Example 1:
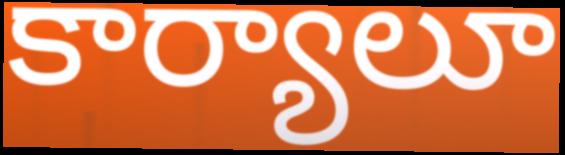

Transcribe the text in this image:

కార్యాలూ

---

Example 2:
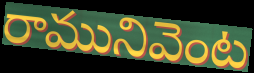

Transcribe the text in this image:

రామునివెంట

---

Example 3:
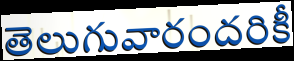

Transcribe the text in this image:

తెలుగువారందరికీ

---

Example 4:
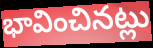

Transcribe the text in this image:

భావించినట్లు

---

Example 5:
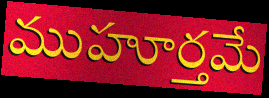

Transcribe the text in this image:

ముహూర్తమే